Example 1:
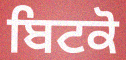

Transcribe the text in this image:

ਬਿਟਕੋ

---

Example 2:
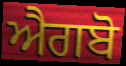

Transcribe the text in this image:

ਐਗਬੋ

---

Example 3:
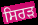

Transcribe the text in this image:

ਸਿਰੜ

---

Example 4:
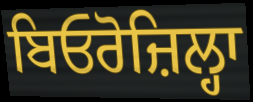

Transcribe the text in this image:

ਬਿਓਰੋਜ਼ਿਲ੍ਹਾ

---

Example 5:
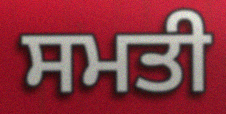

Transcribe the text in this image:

ਸਮਤੀ